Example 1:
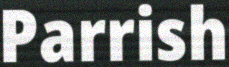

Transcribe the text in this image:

Parrish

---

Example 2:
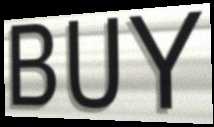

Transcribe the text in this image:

BUY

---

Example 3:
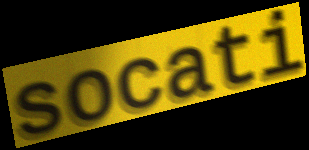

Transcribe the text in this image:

socati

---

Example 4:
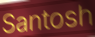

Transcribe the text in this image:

Santosh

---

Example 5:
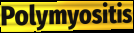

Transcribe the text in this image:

Polymyositis